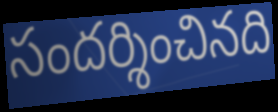
సందర్శించినది